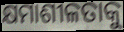
କ୍ଷମାଶୀଳତାକୁ